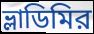
ভ্লাডিমির